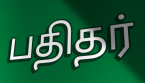
பதிதர்